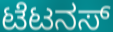
ಟೆಟನಸ್